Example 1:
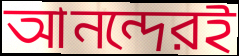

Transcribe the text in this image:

আনন্দেরই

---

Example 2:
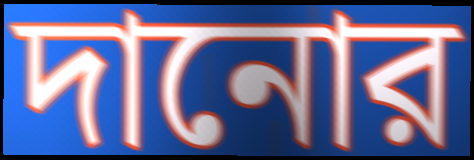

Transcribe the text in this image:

দানোর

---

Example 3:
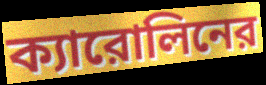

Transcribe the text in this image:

ক্যারোলিনের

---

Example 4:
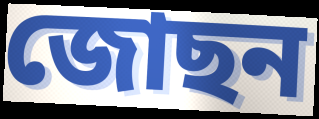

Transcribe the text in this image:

জোছন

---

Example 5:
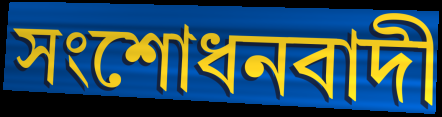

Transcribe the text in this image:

সংশোধনবাদী